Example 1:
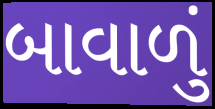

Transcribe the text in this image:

બાવાળું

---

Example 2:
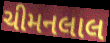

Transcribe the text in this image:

ચીમનલાલ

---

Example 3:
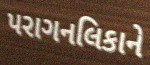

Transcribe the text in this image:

પરાગનલિકાને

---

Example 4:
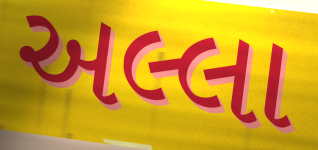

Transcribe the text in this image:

અલ્લા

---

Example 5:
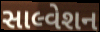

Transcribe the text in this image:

સાલ્વેશન